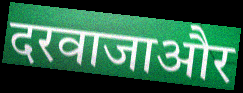
दरवाजाऔर